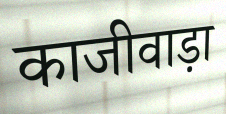
काजीवाड़ा